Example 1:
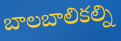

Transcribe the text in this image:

బాలబాలికల్ని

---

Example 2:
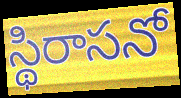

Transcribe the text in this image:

స్థిరాసనో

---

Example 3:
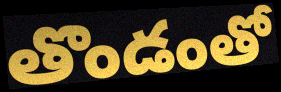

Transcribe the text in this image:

తొండంతో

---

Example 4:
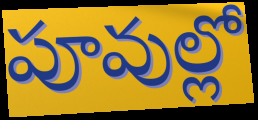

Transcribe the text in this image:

పూవుల్లో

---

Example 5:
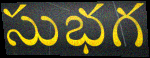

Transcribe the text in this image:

సుభగ